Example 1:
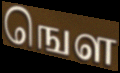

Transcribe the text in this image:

ஙௌ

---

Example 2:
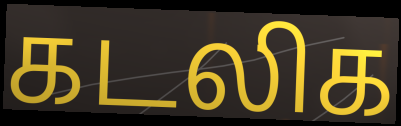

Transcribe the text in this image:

கடலிக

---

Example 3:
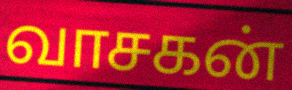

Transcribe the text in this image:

வாசகன்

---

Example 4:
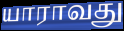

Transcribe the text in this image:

யாராவது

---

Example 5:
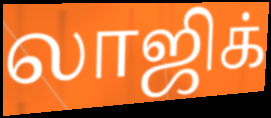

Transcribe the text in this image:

லாஜிக்